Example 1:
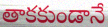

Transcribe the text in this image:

తాకకుండానే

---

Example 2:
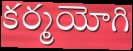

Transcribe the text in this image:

కర్మయోగి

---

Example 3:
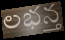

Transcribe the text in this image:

లభన్త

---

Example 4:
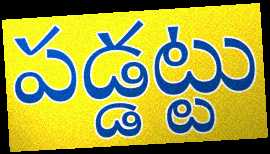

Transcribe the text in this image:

పడ్డట్టు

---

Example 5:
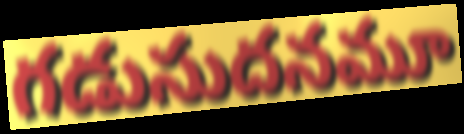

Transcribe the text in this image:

గడుసుదనమూ